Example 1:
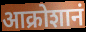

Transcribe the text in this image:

आक्रोशानं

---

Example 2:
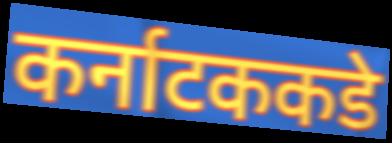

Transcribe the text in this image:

कर्नाटककडे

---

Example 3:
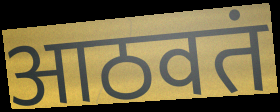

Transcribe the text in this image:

आठवतं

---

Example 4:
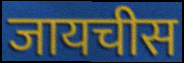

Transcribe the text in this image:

जायचीस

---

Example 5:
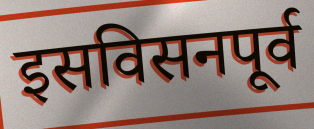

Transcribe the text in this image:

इसविसनपूर्व